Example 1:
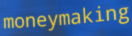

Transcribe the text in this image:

moneymaking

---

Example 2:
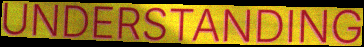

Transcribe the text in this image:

UNDERSTANDING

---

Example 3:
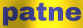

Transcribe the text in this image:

patne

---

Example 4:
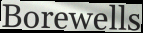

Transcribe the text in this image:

Borewells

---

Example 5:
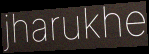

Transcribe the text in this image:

jharukhe